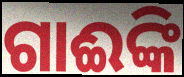
ଗାଈଙ୍କି